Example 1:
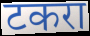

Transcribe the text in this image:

टकरा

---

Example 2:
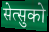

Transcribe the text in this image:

सेत्सुको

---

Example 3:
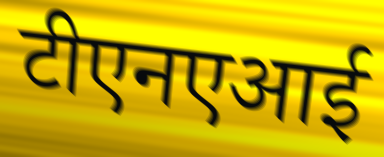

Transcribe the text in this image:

टीएनएआई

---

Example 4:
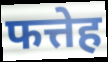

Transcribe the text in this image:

फत्तेह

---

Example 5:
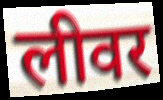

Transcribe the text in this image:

लीवर